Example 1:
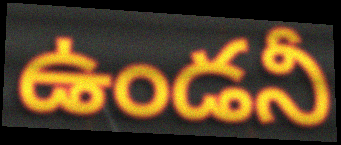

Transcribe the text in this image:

ఉండనీ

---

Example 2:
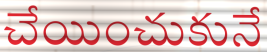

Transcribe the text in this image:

చేయించుకునే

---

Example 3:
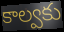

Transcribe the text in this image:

కాల్వకు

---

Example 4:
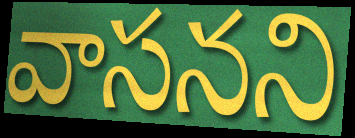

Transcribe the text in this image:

వాసనని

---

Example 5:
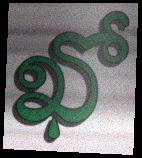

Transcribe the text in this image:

ఖో